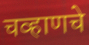
चव्हाणचे